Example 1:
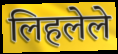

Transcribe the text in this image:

लिहलेले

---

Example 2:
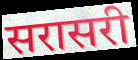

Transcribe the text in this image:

सरासरी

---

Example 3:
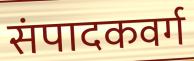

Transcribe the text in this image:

संपादकवर्ग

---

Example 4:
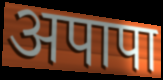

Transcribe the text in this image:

अपापा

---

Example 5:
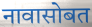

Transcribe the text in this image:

नावासोबत